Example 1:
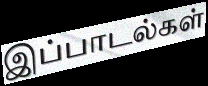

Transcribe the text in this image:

இப்பாடல்கள்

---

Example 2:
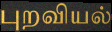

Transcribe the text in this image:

புறவியல்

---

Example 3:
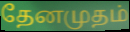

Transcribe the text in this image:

தேனமுதம்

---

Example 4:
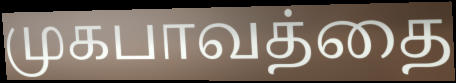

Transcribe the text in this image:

முகபாவத்தை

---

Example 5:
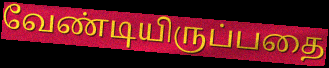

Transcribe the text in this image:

வேண்டியிருப்பதை